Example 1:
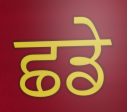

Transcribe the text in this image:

ਛਡੇ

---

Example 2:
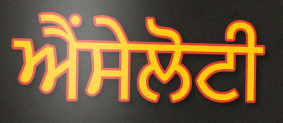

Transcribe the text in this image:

ਐਂਸੇਲੋਟੀ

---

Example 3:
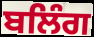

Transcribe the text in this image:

ਬਲਿੰਗ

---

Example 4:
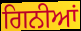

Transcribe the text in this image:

ਗਿਨੀਆਂ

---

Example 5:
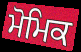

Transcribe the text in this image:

ਮੋਮਿਕ